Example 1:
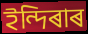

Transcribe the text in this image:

ইন্দিৰাৰ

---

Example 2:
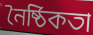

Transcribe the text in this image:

নৈষ্ঠিকতা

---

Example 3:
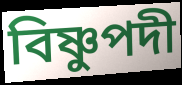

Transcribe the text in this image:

বিষ্ণুপদী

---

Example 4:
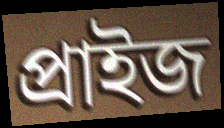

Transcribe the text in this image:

প্ৰাইজ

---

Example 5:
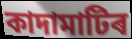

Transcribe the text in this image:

কাদামাটিৰ